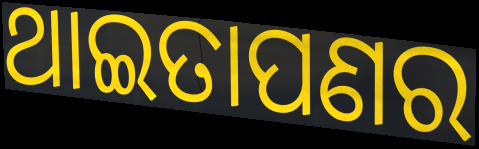
ଥାଇତାପଣର